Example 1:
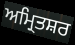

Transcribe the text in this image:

ਅਮ੍ਰਿਤਸ਼ਰ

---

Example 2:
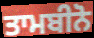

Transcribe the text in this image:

ਤਾਮਬੀਨੋ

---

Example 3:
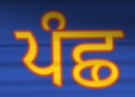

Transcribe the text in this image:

ਪੰਛ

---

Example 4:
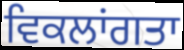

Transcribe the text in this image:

ਵਿਕਲਾਂਗਤਾ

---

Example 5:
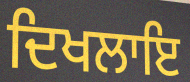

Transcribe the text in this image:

ਦਿਖਲਾਇ